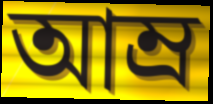
আম্র